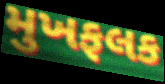
મુખફલક